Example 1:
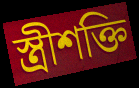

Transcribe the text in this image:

স্ত্রীশক্তি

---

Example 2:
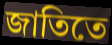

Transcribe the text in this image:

জাতিতে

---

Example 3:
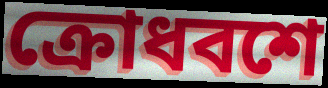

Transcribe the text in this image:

ক্রোধবশে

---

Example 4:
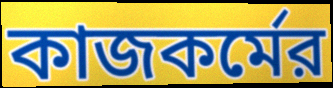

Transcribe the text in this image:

কাজকর্মের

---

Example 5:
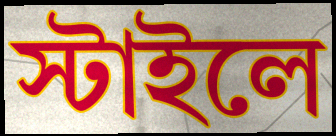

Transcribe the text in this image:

স্টাইলে